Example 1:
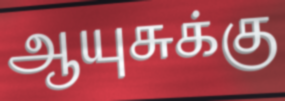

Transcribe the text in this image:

ஆயுசுக்கு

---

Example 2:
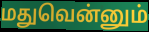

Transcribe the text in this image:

மதுவென்னும்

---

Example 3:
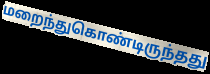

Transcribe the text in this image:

மறைந்துகொண்டிருந்தது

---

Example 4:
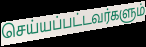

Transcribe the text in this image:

செய்யப்பட்டவர்களும்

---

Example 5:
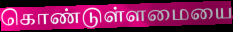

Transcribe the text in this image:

கொண்டுள்ளமையை